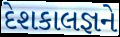
દેશકાલજ્ઞને